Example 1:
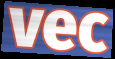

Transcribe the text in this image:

vec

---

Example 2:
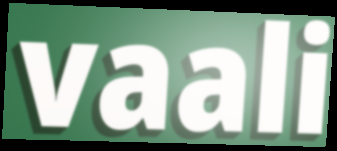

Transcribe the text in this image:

vaali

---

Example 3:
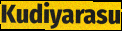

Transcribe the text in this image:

Kudiyarasu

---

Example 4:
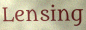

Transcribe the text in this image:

Lensing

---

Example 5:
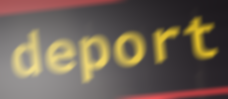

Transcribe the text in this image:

deport